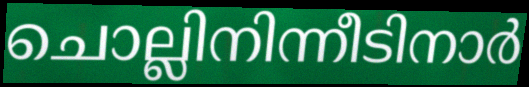
ചൊല്ലിനിന്നീടിനാർ